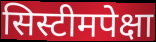
सिस्टीमपेक्षा